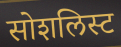
सोशलिस्ट